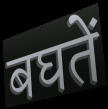
बघतें